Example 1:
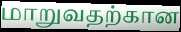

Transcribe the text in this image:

மாறுவதற்கான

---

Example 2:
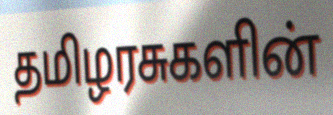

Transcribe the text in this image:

தமிழரசுகளின்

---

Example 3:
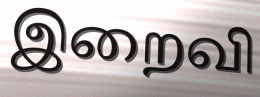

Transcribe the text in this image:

இறைவி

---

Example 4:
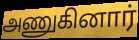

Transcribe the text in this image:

அணுகினார்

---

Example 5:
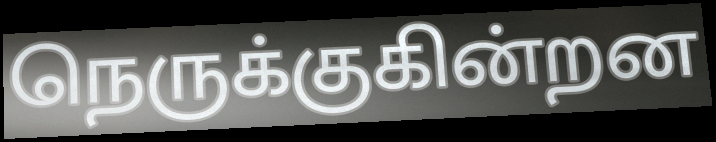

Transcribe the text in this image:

நெருக்குகின்றன